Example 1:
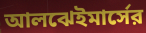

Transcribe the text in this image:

আলঝেইমার্সের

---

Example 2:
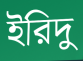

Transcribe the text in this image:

ইরিদু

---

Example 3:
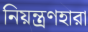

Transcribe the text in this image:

নিয়ন্ত্রণহারা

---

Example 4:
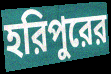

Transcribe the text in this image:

হরিপুরের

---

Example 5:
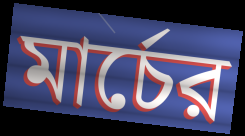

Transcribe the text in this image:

মার্চের